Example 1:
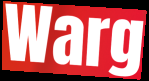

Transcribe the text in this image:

Warg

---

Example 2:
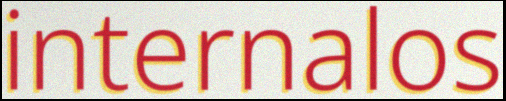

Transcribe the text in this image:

internalos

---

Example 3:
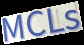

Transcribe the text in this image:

MCLs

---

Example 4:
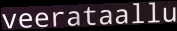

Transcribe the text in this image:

veerataallu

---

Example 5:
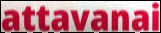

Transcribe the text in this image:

attavanai